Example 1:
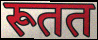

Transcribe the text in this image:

रूतत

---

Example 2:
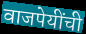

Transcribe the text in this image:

वाजपेयींची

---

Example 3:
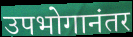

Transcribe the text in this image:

उपभोगानंतर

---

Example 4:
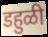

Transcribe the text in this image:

डहुळी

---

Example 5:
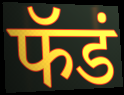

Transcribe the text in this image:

फॅडं